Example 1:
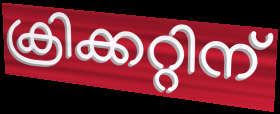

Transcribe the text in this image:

ക്രിക്കറ്റിന്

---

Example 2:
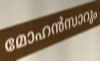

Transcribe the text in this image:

മോഹൻസാറും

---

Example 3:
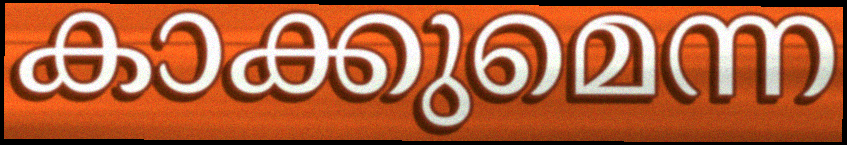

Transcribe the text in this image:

കാക്കുമെന്ന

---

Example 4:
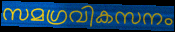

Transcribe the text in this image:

സമഗ്രവികസനം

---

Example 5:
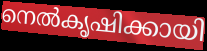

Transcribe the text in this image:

നെൽകൃഷിക്കായി